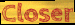
Closer